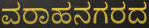
ವರಾಹನಗರದ